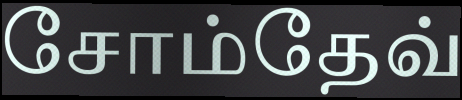
சோம்தேவ்